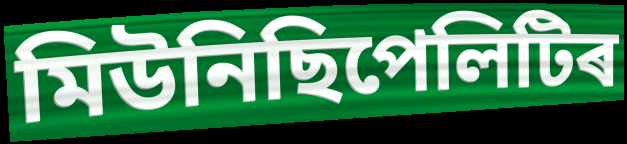
মিউনিছিপেলিটিৰ